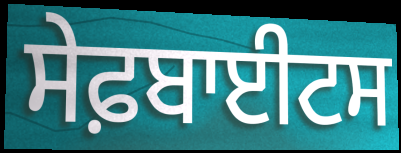
ਸੇਫ਼ਬਾਈਟਸ